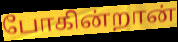
போகின்றான்